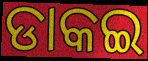
ଡାକଇ